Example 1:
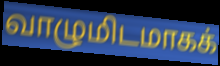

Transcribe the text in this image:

வாழுமிடமாகக்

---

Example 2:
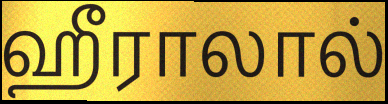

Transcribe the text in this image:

ஹீராலால்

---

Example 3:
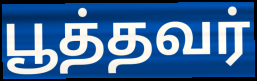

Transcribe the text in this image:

பூத்தவர்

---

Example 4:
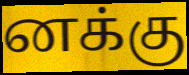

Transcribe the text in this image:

னக்கு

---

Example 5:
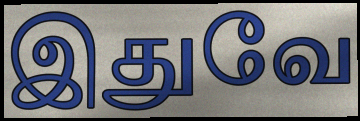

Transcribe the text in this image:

இதுவே